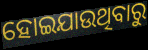
ହୋଇଯାଉଥିବାରୁ